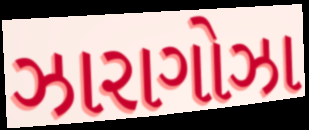
ઝારાગોઝા